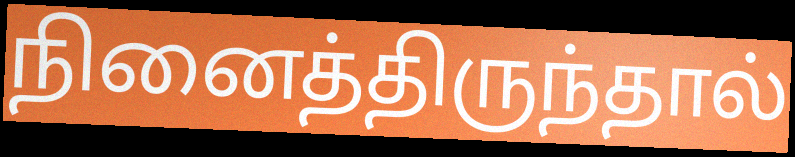
நினைத்திருந்தால்